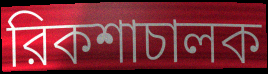
রিকশাচালক